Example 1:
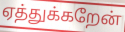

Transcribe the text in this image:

ஏத்துக்கறேன்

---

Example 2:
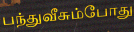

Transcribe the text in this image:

பந்துவீசும்போது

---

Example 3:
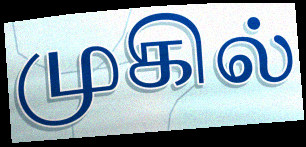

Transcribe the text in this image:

முகில்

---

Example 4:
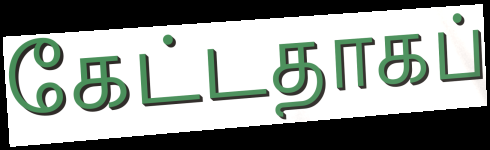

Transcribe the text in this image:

கேட்டதாகப்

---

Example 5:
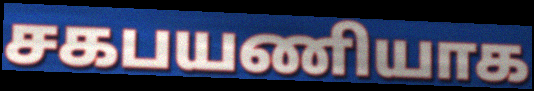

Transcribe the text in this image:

சகபயணியாக